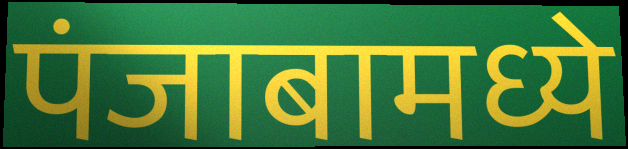
पंजाबामध्ये